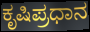
ಕೃಷಿಪ್ರಧಾನ